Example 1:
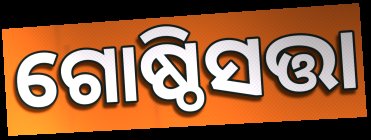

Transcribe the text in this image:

ଗୋଷ୍ଠିସତ୍ତା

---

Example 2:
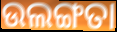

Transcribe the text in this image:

ଉଲଙ୍ଗତା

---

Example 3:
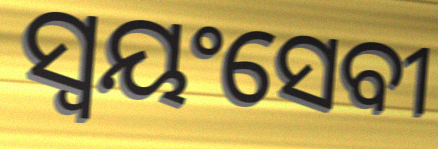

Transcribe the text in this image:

ସ୍ୱୟଂସେବୀ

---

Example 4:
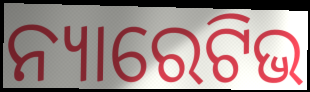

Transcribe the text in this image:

ନ୍ୟାରେଟିଭ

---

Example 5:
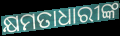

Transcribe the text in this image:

କ୍ଷମତାଧାରୀଙ୍କ